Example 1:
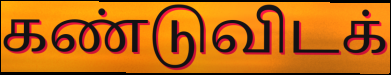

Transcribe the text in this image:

கண்டுவிடக்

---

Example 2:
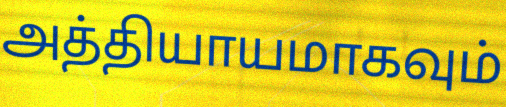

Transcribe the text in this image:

அத்தியாயமாகவும்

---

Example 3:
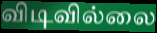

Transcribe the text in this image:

விடிவில்லை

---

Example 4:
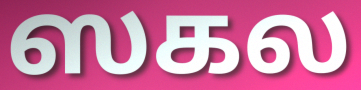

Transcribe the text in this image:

ஸகல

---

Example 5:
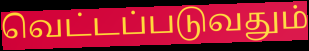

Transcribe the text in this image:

வெட்டப்படுவதும்